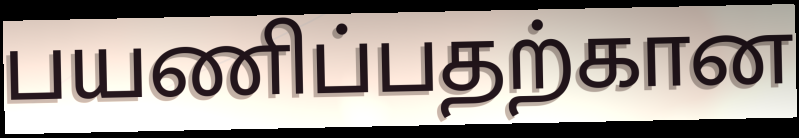
பயணிப்பதற்கான